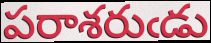
పరాశరుఁడు